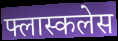
फ्लास्कलेस